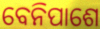
ବେନିପାଶେ